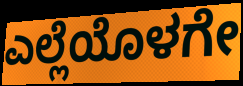
ಎಲ್ಲೆಯೊಳಗೇ